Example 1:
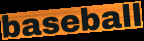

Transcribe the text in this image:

baseball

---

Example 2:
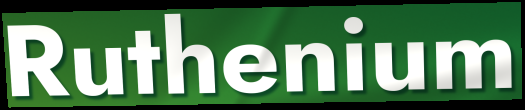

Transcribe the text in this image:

Ruthenium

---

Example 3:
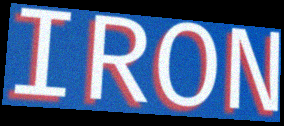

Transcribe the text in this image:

IRON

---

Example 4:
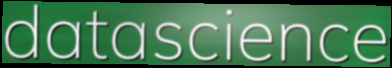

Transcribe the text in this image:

datascience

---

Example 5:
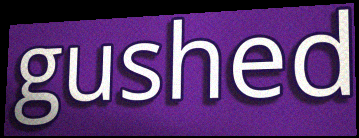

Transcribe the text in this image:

gushed